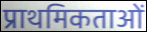
प्राथमिकताओं